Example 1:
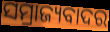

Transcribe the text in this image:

ସମ୍ରାଜ୍ୟବାଦର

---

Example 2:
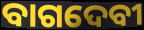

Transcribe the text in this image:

ବାଗଦେବୀ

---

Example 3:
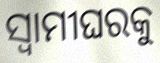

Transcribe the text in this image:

ସ୍ୱାମୀଘରକୁ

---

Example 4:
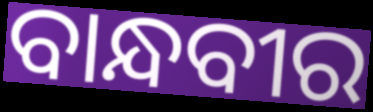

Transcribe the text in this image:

ବାନ୍ଧବୀର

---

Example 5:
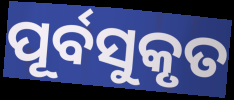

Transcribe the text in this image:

ପୂର୍ବସୁକୃତ